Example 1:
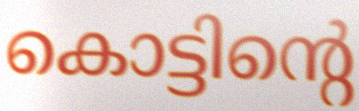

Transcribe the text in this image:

കൊട്ടിന്റെ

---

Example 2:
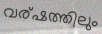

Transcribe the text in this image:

വര്ഷത്തിലും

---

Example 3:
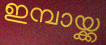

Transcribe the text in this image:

ഇമ്പായ്ക്ക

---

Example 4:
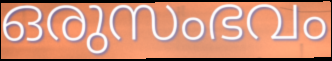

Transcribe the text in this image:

ഒരുസംഭവം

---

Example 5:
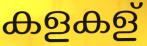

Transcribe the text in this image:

കളകള്